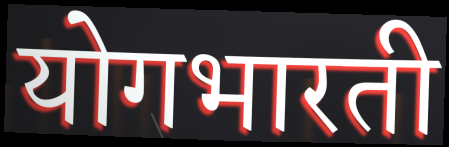
योगभारती